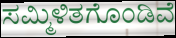
ಸಮ್ಮಿಳಿತಗೊಂಡಿವೆ